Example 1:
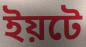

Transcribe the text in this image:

ইয়টে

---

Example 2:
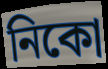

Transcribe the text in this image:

নিকো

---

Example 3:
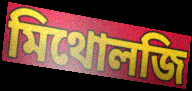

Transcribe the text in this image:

মিথোলজি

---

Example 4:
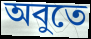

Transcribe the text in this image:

অবুতে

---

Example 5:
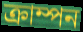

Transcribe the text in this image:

ক্রাম্পন